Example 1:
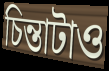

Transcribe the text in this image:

চিন্তাটাও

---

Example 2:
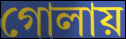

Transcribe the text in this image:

গোলায়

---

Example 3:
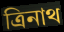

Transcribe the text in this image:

ত্রিনাথ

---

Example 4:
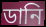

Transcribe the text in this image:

ডানি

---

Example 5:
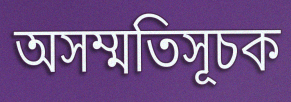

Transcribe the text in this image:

অসম্মতিসূচক